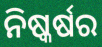
ନିଷ୍କର୍ଷର